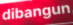
dibangun